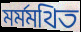
মর্মমথিত